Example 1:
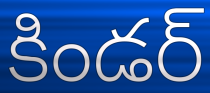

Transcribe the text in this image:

కిండర్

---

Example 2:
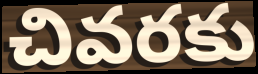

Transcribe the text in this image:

చివరకు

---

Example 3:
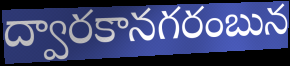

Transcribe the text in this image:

ద్వారకానగరంబున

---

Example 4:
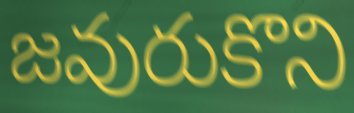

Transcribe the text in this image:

జవురుకొని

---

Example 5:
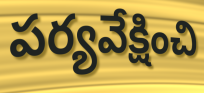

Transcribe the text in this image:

పర్యవేక్షించి